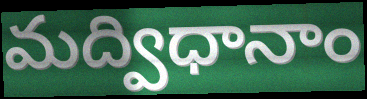
మద్విధానాం